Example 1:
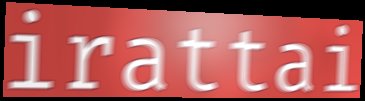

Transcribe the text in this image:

irattai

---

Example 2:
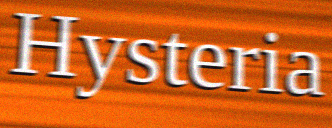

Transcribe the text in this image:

Hysteria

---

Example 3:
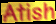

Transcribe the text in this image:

Atish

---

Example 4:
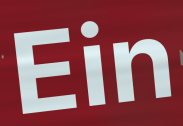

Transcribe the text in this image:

Ein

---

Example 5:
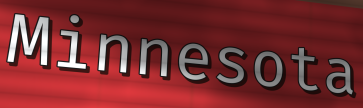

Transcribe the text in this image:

Minnesota